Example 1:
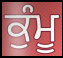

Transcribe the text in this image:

ਕੁੰਮੂ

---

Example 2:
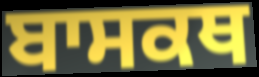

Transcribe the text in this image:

ਬਾਸਕਥ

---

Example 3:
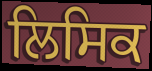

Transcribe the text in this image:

ਲਿਸਿਕ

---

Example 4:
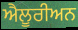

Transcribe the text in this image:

ਐਲੂਰੀਅਨ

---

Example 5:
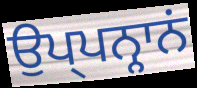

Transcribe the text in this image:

ਉਪ੍ਪਨ੍ਨਾਨਂ